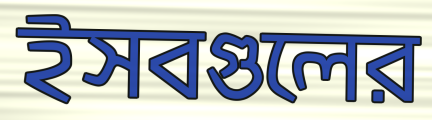
ইসবগুলের